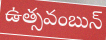
ఉత్సవంబున్